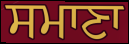
ਸਮਾਣਾ